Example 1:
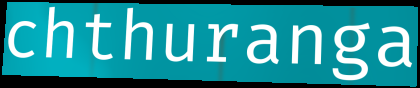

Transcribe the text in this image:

chthuranga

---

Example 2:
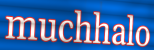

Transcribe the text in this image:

muchhalo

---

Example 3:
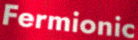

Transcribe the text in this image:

Fermionic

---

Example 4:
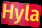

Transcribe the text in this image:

Hyla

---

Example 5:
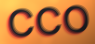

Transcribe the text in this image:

CCO